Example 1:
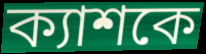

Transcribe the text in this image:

ক্যাশকে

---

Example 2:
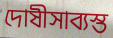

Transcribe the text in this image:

দোষীসাব্যস্ত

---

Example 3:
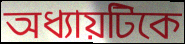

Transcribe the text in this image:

অধ্যায়টিকে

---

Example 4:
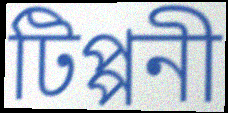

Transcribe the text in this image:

টিপ্পনী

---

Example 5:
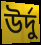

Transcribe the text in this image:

উর্দু